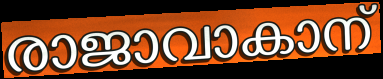
രാജാവാകാന്